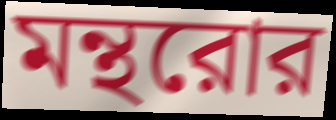
মন্থরোর